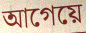
আগেয়ে